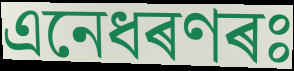
এনেধৰণৰঃ